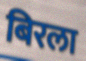
बिरला